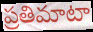
ప్రతిమాటా